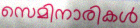
സെമിനാരികൾ